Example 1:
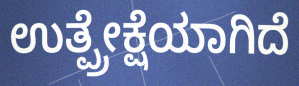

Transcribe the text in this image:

ಉತ್ಪ್ರೇಕ್ಷೆಯಾಗಿದೆ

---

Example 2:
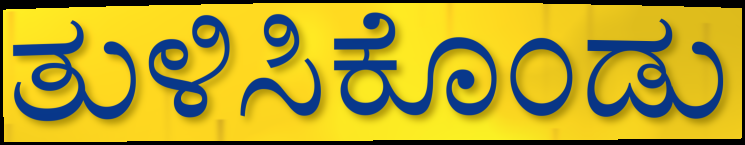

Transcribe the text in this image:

ತುಳಿಸಿಕೊಂಡು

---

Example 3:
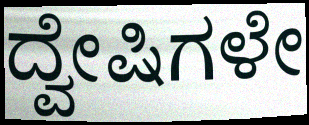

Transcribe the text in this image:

ದ್ವೇಷಿಗಳೇ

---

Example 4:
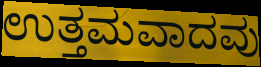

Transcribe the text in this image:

ಉತ್ತಮವಾದವು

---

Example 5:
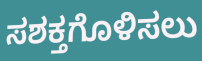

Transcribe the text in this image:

ಸಶಕ್ತಗೊಳಿಸಲು